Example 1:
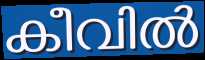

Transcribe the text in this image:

കീവിൽ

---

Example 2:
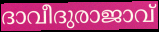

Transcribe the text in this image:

ദാവീദുരാജാവ്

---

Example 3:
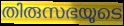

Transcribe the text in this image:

തിരുസഭയുടെ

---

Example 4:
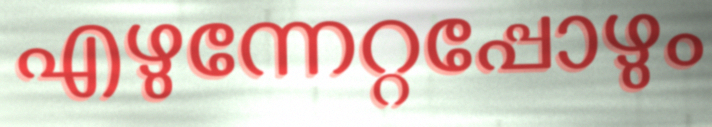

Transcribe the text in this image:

എഴുന്നേറ്റപ്പോഴും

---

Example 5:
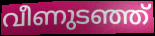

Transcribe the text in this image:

വീണുടഞ്ഞ്